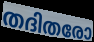
തദിതരോ